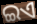
ଇଏ